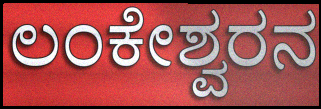
ಲಂಕೇಶ್ವರನ